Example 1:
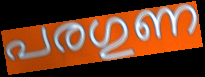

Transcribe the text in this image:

പരഗുണ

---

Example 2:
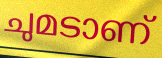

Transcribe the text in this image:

ചുമടാണ്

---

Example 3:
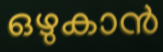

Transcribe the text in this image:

ഒഴുകാൻ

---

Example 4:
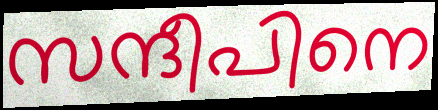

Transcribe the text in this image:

സന്ദീപിനെ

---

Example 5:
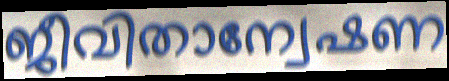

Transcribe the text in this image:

ജീവിതാന്വേഷണ